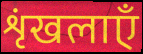
शृंखलाएँ